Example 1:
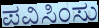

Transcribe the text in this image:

ಪವಿಸಿಂಸು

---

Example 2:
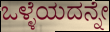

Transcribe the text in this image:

ಒಳ್ಳೆಯದನ್ನೇ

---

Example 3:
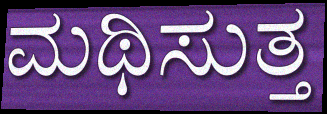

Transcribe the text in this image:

ಮಥಿಸುತ್ತ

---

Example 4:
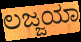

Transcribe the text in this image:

ಲಜ್ಜಯಾ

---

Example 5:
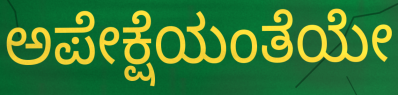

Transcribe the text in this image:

ಅಪೇಕ್ಷೆಯಂತೆಯೇ